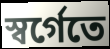
স্বর্গেতে